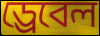
ড্রেবেল